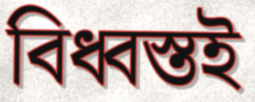
বিধ্বস্তই